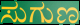
ಸುಗುಣ